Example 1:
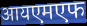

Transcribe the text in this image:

आयएमएफ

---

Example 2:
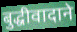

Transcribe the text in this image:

बुद्धीवादाने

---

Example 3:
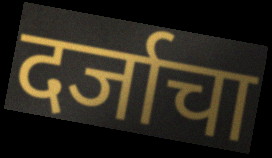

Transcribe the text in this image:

दर्जाचा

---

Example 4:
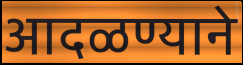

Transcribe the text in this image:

आदळण्याने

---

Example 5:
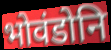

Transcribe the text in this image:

भोवंडोनि